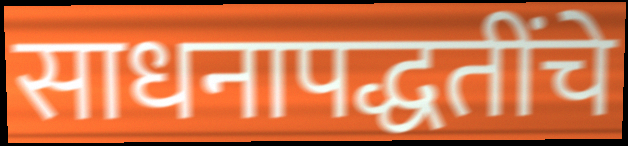
साधनापद्धतींचे